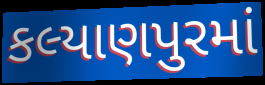
કલ્યાણપુરમાં